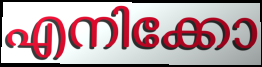
എനിക്കോ